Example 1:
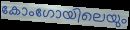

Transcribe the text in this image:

കോംഗോയിലെയും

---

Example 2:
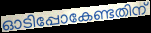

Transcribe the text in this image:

ഓടിപ്പോകേണ്ടതിന്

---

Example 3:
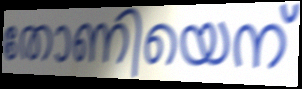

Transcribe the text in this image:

തോണിയെന്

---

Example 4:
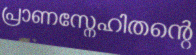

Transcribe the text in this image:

പ്രാണസ്നേഹിതന്റെ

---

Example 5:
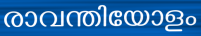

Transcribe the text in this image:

രാവന്തിയോളം